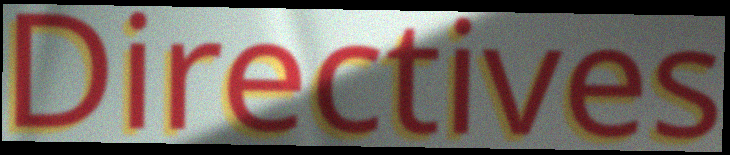
Directives